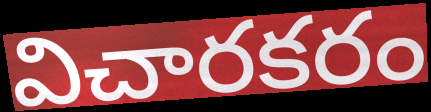
విచారకరం